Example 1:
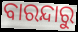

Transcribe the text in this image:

ବାରନ୍ଦାରୁ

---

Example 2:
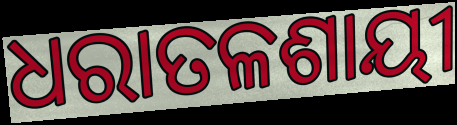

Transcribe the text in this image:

ଧରାତଳଶାୟୀ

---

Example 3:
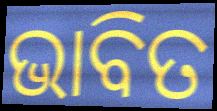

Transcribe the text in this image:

ଭାବିତ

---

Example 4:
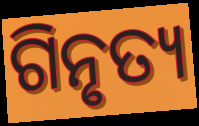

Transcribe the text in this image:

ଗିନୃତ୍ୟ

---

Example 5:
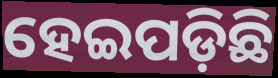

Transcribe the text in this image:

ହେଇପଡ଼ିଛି